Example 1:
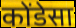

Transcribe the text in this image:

कोंडेसा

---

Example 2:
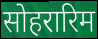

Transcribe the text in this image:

सोहरारिम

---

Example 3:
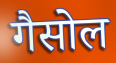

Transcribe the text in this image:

गैसोल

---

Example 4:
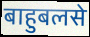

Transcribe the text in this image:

बाहुबलसे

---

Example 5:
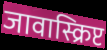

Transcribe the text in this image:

जावास्क्रिप्ट